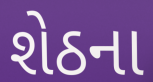
શેઠના